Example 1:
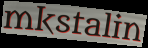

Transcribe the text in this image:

mkstalin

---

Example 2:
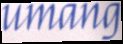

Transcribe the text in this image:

umang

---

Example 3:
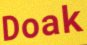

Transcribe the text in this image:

Doak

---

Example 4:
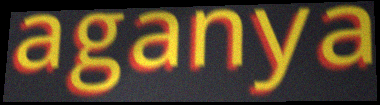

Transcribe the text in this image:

aganya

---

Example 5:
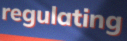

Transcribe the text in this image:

regulating